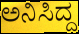
ಅನಿಸಿದ್ದ